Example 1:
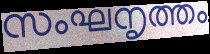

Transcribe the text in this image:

സംഘനൃത്തം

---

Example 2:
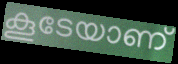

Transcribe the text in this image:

കൂടേയാണ്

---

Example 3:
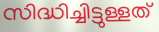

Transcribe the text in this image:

സിദ്ധിച്ചിട്ടുള്ളത്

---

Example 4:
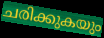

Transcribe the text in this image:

ചരിക്കുകയും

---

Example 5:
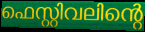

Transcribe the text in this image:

ഫെസ്റ്റിവലിന്റെ